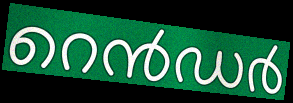
റെൻഡർ